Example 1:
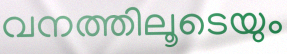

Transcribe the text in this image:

വനത്തിലൂടെയും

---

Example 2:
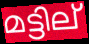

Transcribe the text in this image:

മട്ടില്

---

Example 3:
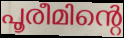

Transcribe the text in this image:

പൂരീമിന്റെ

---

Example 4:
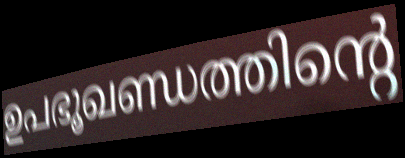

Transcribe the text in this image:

ഉപഭൂഖണ്ഡത്തിന്റെ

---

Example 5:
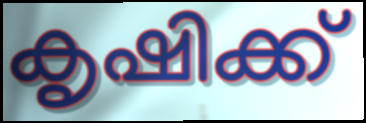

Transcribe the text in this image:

കൃഷിക്ക്